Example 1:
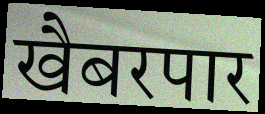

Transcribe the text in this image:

खैबरपार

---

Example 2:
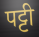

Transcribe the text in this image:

पट्टी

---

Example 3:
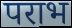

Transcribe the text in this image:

पराभ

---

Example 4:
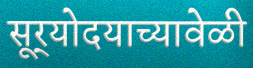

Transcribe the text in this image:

सूर्योदयाच्यावेळी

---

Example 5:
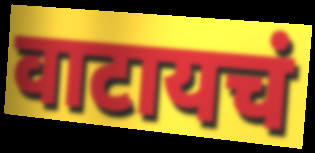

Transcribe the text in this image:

वाटायचं